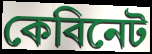
কেবিনেট